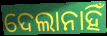
ଦେଲାନାହିଁ